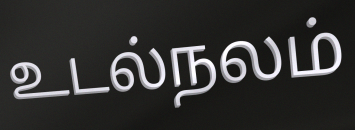
உடல்நலம்